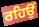
ਰਹਿਉਂ